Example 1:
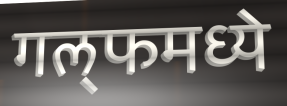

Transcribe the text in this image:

गल्फमध्ये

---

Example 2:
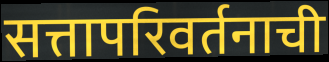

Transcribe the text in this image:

सत्तापरिवर्तनाची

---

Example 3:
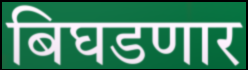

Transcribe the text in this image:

बिघडणार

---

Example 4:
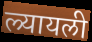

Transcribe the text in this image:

ल्यायली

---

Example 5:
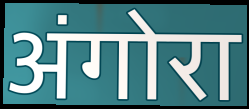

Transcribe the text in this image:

अंगोरा